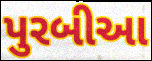
પુરબીઆ